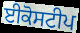
ਈਕੋਸਟੀਪ